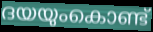
ദയയുംകൊണ്ട്